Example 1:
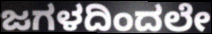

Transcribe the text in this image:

ಜಗಳದಿಂದಲೇ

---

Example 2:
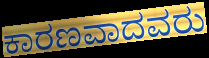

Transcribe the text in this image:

ಕಾರಣವಾದವರು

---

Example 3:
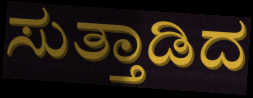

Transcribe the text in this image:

ಸುತ್ತಾಡಿದ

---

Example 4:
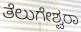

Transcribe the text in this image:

ತೆಲುಗೇಶ್ವರಾ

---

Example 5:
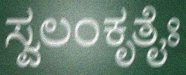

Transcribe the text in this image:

ಸ್ವಲಂಕೃತೈಃ